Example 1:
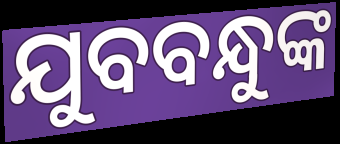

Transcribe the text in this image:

ଯୁବବନ୍ଧୁଙ୍କ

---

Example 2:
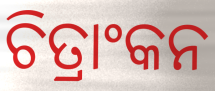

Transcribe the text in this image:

ଚିତ୍ରାଂକନ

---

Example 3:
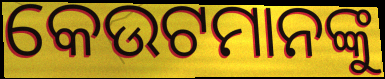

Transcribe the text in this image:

କେଉଟମାନଙ୍କୁ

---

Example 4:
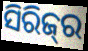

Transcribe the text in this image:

ସିରିଜ୍‌ର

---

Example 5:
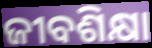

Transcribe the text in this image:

ଜୀବଶିକ୍ଷା